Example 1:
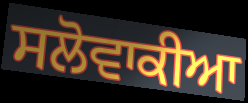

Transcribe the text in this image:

ਸਲੋਵਾਕੀਆ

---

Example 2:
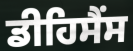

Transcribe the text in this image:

ਡੀਹਿਸੈਂਸ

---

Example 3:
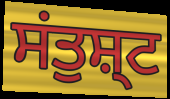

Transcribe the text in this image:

ਸਂਤੁਸ਼੍ਟ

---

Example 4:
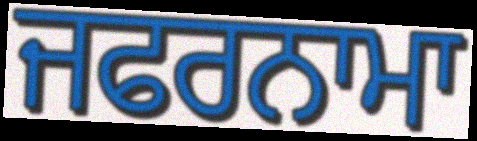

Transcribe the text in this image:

ਜਫਰਨਾਮਾ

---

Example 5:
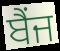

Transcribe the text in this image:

ਬੈਂਜ